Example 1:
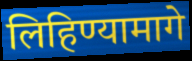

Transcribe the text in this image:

लिहिण्यामागे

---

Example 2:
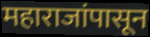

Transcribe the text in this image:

महाराजांपासून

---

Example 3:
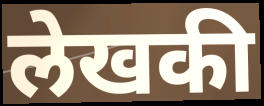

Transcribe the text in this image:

लेखकी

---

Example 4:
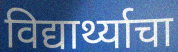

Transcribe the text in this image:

विद्यार्थ्याचा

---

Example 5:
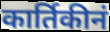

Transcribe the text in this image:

कार्तिकीनं